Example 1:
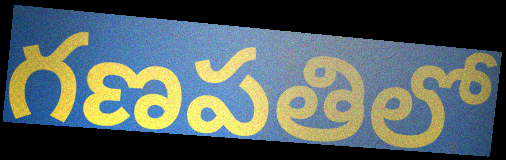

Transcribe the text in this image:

గణపతిలో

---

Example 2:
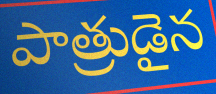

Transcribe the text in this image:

పాత్రుడైన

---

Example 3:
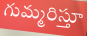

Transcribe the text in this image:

గుమ్మరిస్తూ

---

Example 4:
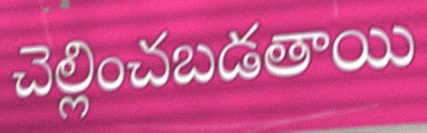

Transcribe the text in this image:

చెల్లించబడతాయి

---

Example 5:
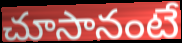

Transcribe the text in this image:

చూసానంటే